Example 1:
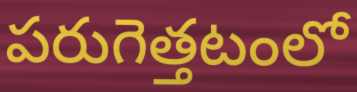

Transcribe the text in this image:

పరుగెత్తటంలో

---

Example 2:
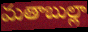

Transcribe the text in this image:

మతాబుల్లా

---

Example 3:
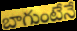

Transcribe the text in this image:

బాగుంటేనే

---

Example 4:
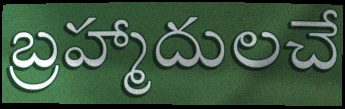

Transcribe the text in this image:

బ్రహ్మాదులచే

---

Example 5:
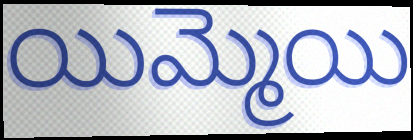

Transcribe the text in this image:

యిమ్మెయి